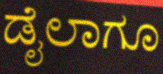
ಡೈಲಾಗೂ